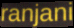
ranjani